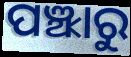
ପଞ୍ଝାରୁ